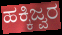
ಹಕ್ಕಿಜ್ವರ